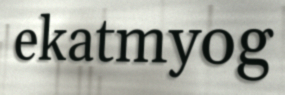
ekatmyog